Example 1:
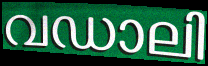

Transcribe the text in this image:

വഡാലി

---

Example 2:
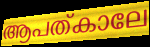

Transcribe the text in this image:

ആപത്കാലേ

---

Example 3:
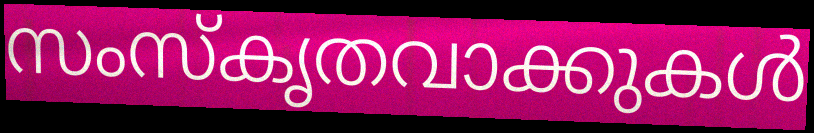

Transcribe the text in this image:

സംസ്കൃതവാക്കുകൾ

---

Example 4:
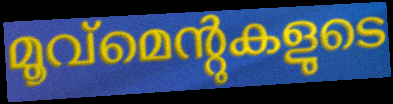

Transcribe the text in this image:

മൂവ്മെന്റുകളുടെ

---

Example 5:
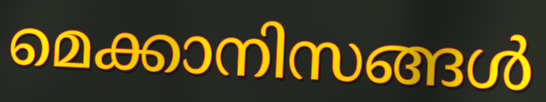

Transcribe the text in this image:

മെക്കാനിസങ്ങൾ